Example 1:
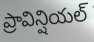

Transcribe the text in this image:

ప్రావిన్షియల్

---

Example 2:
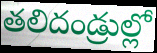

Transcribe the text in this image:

తలిదండ్రుల్లో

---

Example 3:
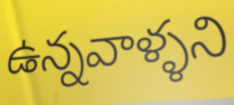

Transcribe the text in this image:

ఉన్నవాళ్ళని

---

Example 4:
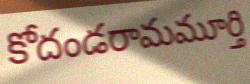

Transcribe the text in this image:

కోదండరామమూర్తి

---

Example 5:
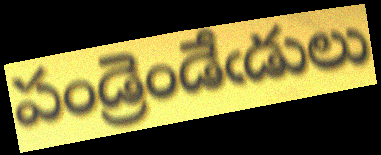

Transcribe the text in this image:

పండ్రెండేఁడులు